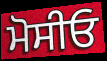
ਮੋਸੀਓ